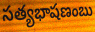
సత్యభాషణంబు